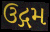
ઉદ્ગમ